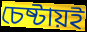
চেষ্টায়ই